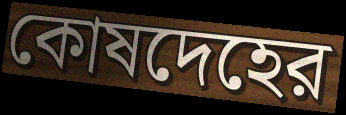
কোষদেহের